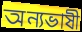
অন্যভাষী